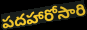
పదహారోసారి